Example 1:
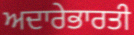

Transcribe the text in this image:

ਅਦਾਰੇਭਾਰਤੀ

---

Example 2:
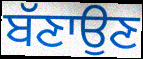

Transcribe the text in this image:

ਬੱਣਾਉਣ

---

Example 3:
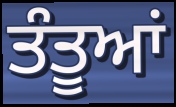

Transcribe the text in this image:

ਤੰਤੂਆਂ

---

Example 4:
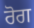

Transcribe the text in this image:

ਰੋਗ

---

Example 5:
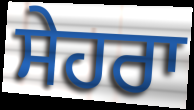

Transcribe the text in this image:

ਸੇਹਰਾ